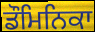
ਡੌਮਿਨਿਕਾ